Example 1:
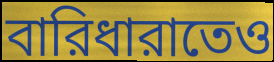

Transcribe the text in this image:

বারিধারাতেও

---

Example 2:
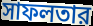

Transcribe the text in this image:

সাফলতার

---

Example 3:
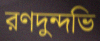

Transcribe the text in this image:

রণদুন্দভি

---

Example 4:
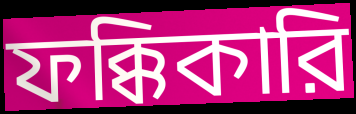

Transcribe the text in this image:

ফক্কিকারি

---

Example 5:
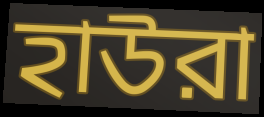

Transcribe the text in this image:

হাউরা